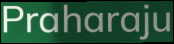
Praharaju